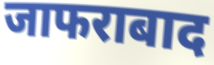
जाफराबाद